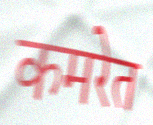
कमरेत